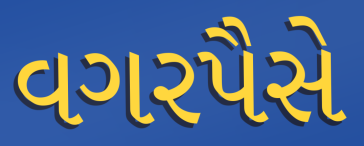
વગરપૈસે